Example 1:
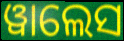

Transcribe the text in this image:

ୱାଲେସ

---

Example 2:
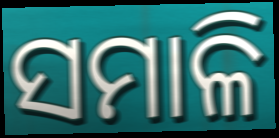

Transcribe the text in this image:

ସମାଳି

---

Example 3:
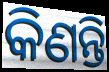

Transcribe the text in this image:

କିଣନ୍ତି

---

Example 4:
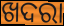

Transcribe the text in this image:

ଖଦରା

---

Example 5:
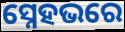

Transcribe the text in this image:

ସ୍ନେହଭରେ